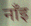
नाँइ